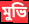
মুভি